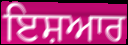
ਇਸ਼ਆਰ